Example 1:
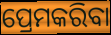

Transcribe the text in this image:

ପ୍ରେମକରିବା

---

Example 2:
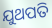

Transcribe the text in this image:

ଯୁଥପତି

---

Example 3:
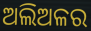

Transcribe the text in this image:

ଅଲିଅଳର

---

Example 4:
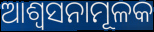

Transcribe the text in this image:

ଆଶ୍ୱସନାମୂଳକ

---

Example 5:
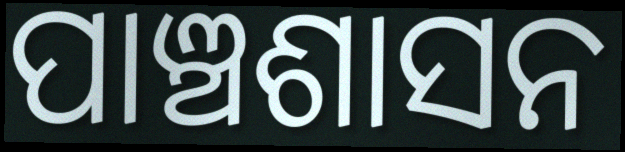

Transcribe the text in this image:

ପାଞ୍ଚଶାସନ